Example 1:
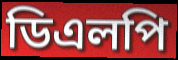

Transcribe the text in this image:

ডিএলপি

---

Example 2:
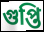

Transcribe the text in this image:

গুপ্তি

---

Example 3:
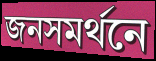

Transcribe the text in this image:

জনসমর্থনে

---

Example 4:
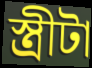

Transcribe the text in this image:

স্ত্রীটা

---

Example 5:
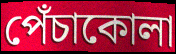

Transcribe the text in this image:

পেঁচাকোলা